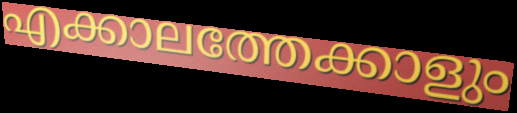
എക്കാലത്തേക്കാളും